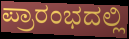
ಪ್ರಾರಂಭದಲ್ಲಿ